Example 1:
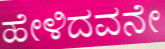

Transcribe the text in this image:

ಹೇಳಿದವನೇ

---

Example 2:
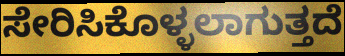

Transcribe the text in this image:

ಸೇರಿಸಿಕೊಳ್ಳಲಾಗುತ್ತದೆ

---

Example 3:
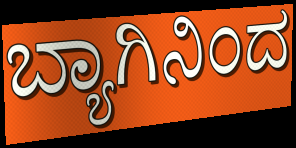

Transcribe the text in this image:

ಬ್ಯಾಗಿನಿಂದ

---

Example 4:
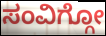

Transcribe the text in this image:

ಸಂವಿಗ್ಗೋ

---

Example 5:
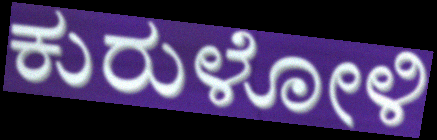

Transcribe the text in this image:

ಕುರುಳೋಳಿ